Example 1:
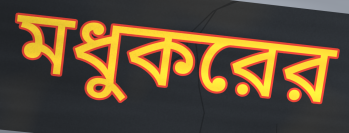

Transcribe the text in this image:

মধুকরের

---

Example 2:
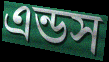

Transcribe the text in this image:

এন্ডস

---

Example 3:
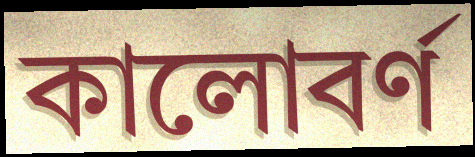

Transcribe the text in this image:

কালোবর্ণ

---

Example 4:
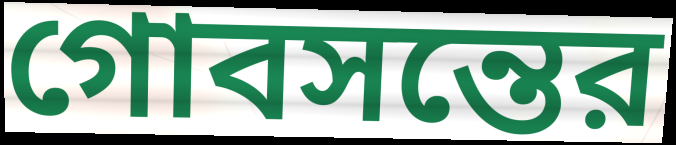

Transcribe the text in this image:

গোবসন্তের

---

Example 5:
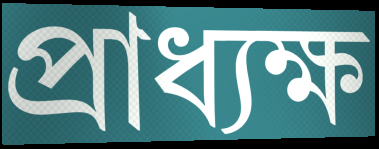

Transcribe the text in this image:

প্রাধ্যক্ষ